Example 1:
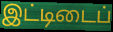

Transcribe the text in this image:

இட்டிடைப்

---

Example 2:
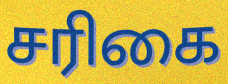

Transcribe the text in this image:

சரிகை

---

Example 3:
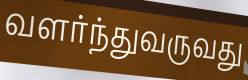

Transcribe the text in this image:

வளர்ந்துவருவது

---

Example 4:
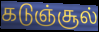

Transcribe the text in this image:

கடுஞ்சூல்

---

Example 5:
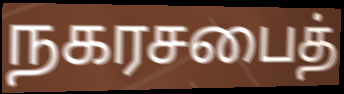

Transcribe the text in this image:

நகரசபைத்